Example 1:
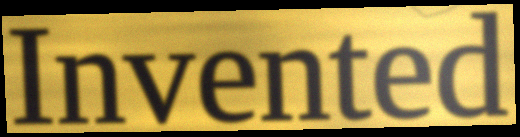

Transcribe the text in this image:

Invented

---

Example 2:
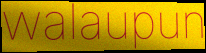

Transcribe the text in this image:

walaupun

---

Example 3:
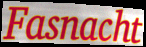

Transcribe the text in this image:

Fasnacht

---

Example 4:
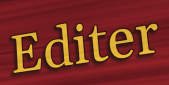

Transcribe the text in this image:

Editer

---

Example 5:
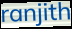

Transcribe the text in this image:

ranjith